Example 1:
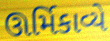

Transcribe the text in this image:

ઊર્મિકાવ્યે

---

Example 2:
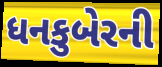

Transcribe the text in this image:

ધનકુબેરની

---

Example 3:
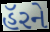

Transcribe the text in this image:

હૅરને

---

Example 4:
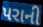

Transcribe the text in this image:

પરાની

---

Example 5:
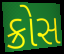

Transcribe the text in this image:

ક્રોસ